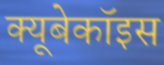
क्यूबेकॉइस